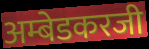
अम्बेडकरजी